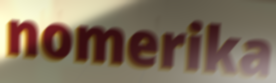
nomerika